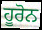
ਹੂਰੋਨ